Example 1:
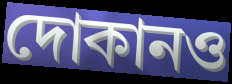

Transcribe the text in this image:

দোকানও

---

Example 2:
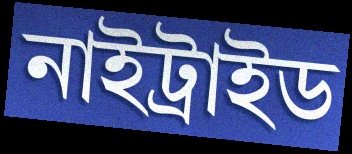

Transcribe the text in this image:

নাইট্রাইড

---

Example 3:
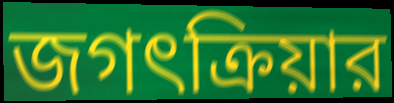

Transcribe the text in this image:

জগৎক্রিয়ার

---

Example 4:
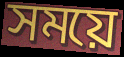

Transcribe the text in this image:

সময়ে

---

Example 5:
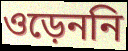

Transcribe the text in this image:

ওড়েননি